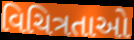
વિચિત્રતાઓ